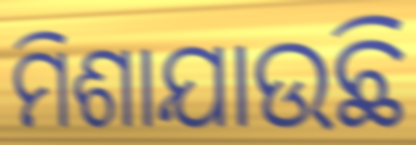
ମିଶାଯାଉଛି